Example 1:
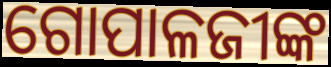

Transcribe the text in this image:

ଗୋପାଳଜୀଙ୍କ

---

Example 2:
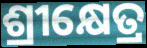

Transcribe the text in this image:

ଶ୍ରୀକ୍ଷେତ୍ର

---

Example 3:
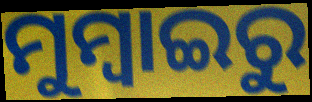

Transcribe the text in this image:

ମୁମ୍ବାଇରୁ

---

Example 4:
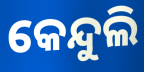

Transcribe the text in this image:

କେନ୍ଦୁଲି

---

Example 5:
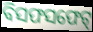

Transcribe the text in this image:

ବିସଫସଫେଟ୍